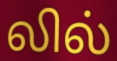
லில்